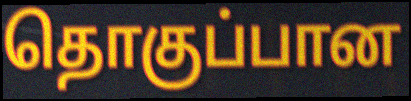
தொகுப்பான